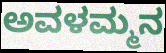
ಅವಳಮ್ಮನ